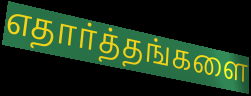
எதார்த்தங்களை